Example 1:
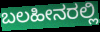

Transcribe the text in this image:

ಬಲಹೀನರಲ್ಲಿ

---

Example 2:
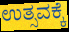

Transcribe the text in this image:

ಉತ್ಸವಕ್ಕೆ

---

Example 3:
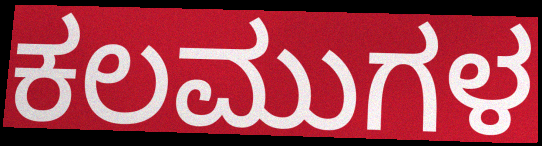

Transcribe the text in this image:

ಕಲಮುಗಳ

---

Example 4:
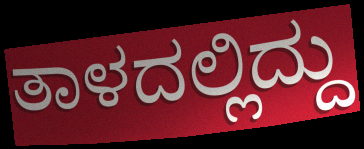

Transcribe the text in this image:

ತಾಳದಲ್ಲಿದ್ದು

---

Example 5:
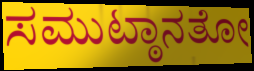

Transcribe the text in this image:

ಸಮುಟ್ಠಾನತೋ